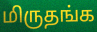
மிருதங்க